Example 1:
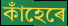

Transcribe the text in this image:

কাঁহেৰে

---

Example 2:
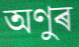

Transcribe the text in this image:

অণুৰ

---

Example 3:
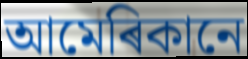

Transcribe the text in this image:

আমেৰিকানে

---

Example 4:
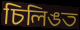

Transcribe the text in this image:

চিলিঙত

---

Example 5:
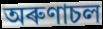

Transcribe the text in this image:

অৰুণাচল